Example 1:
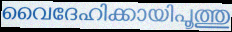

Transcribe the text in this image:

വൈദേഹിക്കായിപൂത്തു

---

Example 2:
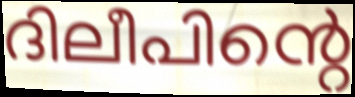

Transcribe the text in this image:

ദിലീപിന്റെ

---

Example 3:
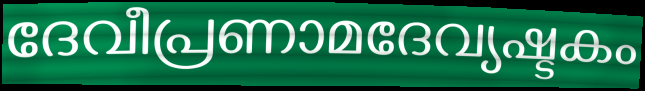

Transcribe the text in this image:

ദേവീപ്രണാമദേവ്യഷ്ടകം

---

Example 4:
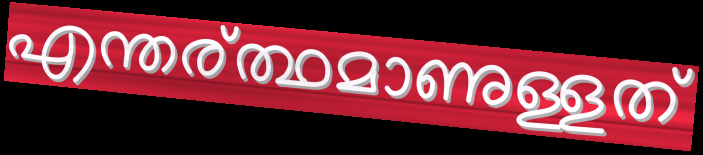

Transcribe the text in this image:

എന്തര്ത്ഥമാണുള്ളത്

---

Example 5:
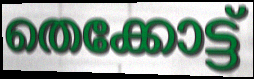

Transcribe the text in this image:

തെക്കോട്ട്